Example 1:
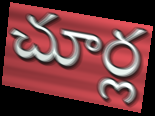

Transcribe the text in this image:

చూర్ల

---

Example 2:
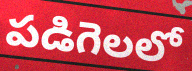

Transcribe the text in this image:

పడిగెలలో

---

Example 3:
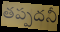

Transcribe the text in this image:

తప్పదనీ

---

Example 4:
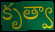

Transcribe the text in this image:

కృత్వా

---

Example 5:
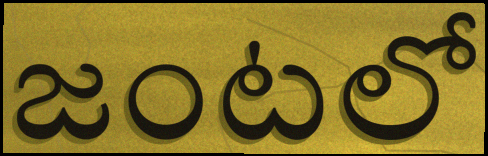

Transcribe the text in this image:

జంటలో